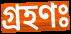
গ্রহণঃ